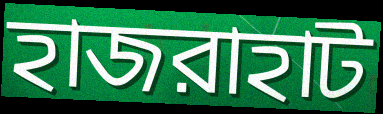
হাজরাহাট